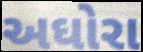
અઘોરા